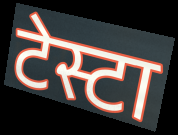
टेस्टा